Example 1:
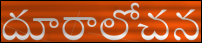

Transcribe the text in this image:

దూరాలోచన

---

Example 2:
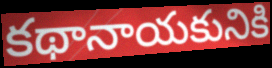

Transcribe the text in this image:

కథానాయకునికి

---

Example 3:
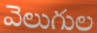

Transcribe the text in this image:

వెలుగుల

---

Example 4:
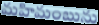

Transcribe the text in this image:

మహిమంబును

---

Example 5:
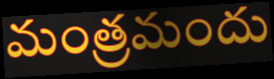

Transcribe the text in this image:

మంత్రమందు